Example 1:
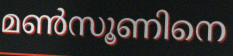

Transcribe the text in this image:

മൺസൂണിനെ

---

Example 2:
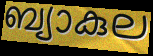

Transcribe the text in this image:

ബ്യാകുല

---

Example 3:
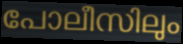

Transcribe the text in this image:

പോലീസിലും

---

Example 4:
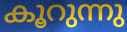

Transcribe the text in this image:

കൂറുന്നു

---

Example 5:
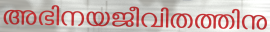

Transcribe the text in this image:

അഭിനയജീവിതത്തിനു